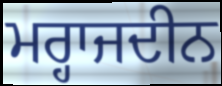
ਮਰ੍ਹਾਜਦੀਨ